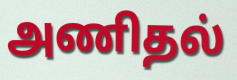
அணிதல்